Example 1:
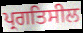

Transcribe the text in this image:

ਪ੍ਰਗਤਿਸੀਲ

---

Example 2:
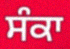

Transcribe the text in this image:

ਸੰਕਾ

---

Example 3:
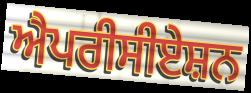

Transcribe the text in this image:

ਐਪਰੀਸੀਏਸ਼ਨ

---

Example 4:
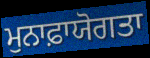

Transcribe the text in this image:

ਮੁਨਾਫ਼ਾਯੋਗਤਾ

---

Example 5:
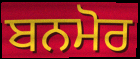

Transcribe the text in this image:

ਬਨਮੋਰ